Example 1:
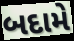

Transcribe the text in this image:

બદામે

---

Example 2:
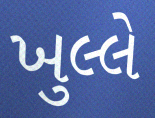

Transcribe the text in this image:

ખુલ્લે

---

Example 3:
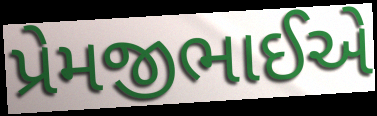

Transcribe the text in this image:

પ્રેમજીભાઈએ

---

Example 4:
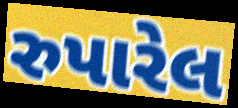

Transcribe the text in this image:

રુપારેલ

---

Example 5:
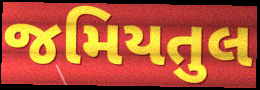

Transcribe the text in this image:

જમિયતુલ